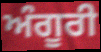
ਅੰਗੂਰੀ